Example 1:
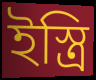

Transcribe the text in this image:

ইস্ত্রি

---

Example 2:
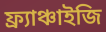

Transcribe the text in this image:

ফ্র্যাঞ্চাইজি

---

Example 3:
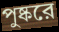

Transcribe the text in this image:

পুষ্করে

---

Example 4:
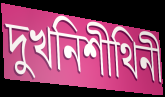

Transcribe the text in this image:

দুখনিশীথিনী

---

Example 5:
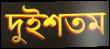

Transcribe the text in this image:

দুইশতম